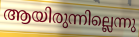
ആയിരുന്നില്ലെന്നു